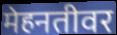
मेहनतीवर